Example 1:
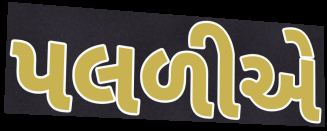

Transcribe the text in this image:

પલળીએ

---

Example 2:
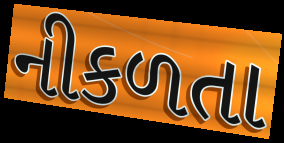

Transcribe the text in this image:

નીકળતા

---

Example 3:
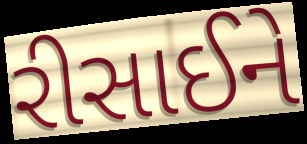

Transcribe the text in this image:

રીસાઈને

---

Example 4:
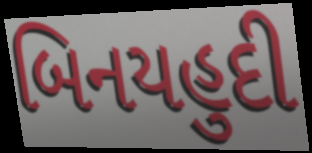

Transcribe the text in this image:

બિનયહુદી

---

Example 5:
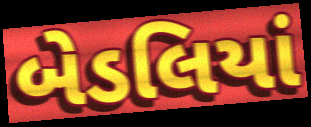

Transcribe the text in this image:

બેડલિયાં